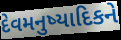
દેવમનુષ્યાદિકને